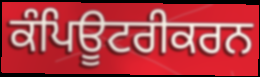
ਕੰਪਿਊਟਰੀਕਰਨ